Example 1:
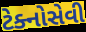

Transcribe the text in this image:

ટેક્નોસેવી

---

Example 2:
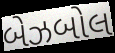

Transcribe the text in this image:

બેઝબોલ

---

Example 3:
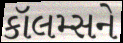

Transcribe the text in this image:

કૉલમ્સને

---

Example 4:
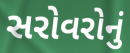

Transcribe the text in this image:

સરોવરોનું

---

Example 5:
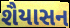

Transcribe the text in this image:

શૈયાસન